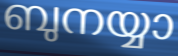
ബുനയ്യാ